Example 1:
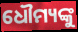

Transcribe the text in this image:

ଧୌମ୍ୟଙ୍କୁ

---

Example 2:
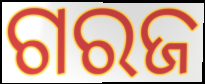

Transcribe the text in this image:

ଗରଜ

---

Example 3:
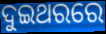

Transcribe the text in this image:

ଦୁଇଥରରେ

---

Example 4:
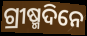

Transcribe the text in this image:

ଗ୍ରୀଷ୍ମଦିନେ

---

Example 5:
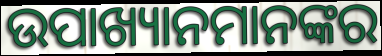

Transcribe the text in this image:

ଉପାଖ୍ୟାନମାନଙ୍କର